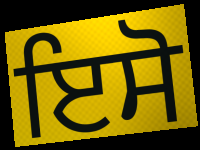
ਇਸੋ